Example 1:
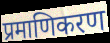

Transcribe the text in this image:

प्रमाणिकरण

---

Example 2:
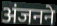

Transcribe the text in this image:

अंजनने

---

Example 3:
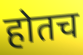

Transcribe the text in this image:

होतच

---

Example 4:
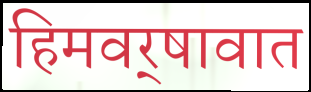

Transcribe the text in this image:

हिमवर्षावात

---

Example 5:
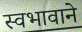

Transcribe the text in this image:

स्वभावाने